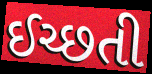
ઈચ્છતી